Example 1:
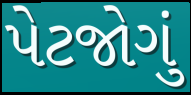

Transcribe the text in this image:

પેટજોગું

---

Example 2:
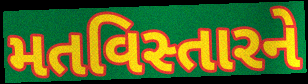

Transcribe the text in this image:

મતવિસ્તારને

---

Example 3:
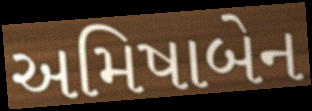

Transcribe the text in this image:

અમિષાબેન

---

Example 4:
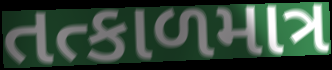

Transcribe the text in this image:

તત્કાળમાત્ર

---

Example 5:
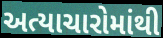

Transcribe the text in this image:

અત્યાચારોમાંથી